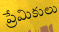
ప్రేమికులు